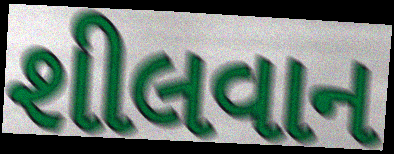
શીલવાન